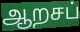
ஆறசப்